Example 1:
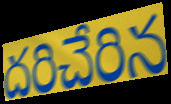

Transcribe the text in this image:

దరిచేరిన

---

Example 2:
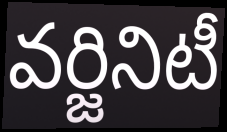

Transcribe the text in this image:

వర్జినిటీ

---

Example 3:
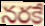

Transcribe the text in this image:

నరకే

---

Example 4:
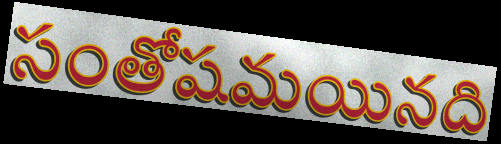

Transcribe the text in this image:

సంతోషమయినది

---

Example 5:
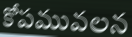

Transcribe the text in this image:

కోపమువలన